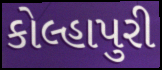
કોલ્હાપુરી